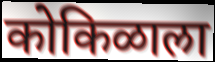
कोकिळाला